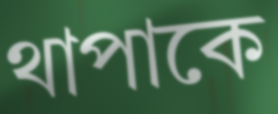
থাপাকে